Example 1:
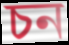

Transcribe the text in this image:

চন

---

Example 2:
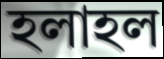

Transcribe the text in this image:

হলাহল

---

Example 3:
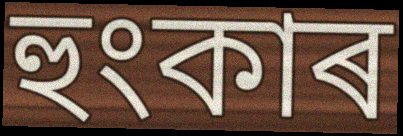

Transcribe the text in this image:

হুংকাৰ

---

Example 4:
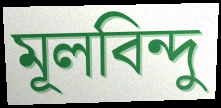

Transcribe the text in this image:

মূলবিন্দু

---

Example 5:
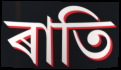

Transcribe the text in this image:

ৰাতি